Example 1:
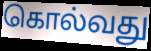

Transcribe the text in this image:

கொல்வது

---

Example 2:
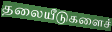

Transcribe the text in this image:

தலையீடுகளைச்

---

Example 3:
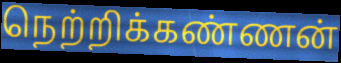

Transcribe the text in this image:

நெற்றிக்கண்ணன்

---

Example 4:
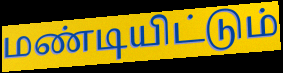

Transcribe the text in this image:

மண்டியிட்டும்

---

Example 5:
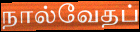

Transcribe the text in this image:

நால்வேதப்